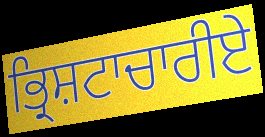
ਭ੍ਰਿਸ਼ਟਾਚਾਰੀਏ